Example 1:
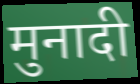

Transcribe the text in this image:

मुनादी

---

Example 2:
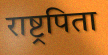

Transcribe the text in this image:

राष्ट्रपिता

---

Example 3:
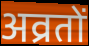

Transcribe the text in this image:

अव्रतों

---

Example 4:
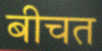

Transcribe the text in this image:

बीचत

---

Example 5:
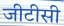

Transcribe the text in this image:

जीटीसी